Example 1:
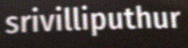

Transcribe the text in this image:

srivilliputhur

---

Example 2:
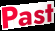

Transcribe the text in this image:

Past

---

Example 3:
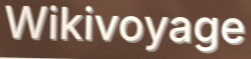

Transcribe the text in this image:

Wikivoyage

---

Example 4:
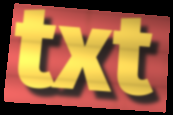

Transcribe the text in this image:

txt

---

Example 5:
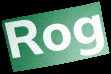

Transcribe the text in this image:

Rog